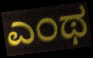
ಎಂಥ